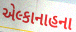
એલ્કાનાહના